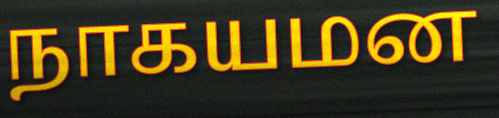
நாகயமன